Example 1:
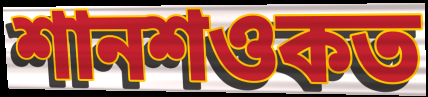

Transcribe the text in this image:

শানশওকত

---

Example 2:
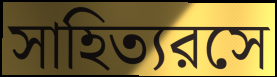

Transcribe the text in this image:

সাহিত্যরসে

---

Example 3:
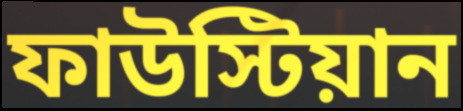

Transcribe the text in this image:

ফাউস্টিয়ান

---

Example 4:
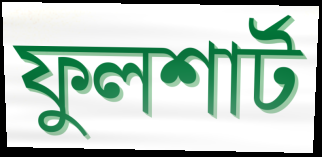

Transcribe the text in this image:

ফুলশার্ট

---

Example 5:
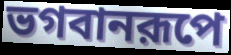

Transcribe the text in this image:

ভগবানরূপে